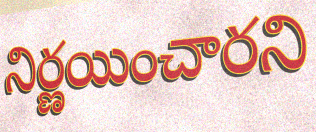
నిర్ణయించారని